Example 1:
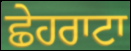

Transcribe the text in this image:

ਛੇਹਰਾਟਾ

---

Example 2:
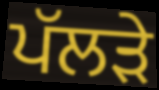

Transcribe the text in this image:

ਪੱਲੜੇ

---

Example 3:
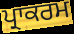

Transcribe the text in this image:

ਪ੍ਰਾਕਰਮ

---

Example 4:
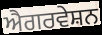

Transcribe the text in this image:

ਐਗਰਵੇਸ਼ਨ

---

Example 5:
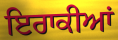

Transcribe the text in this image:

ਇਰਾਕੀਆਂ